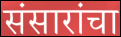
संसारांचा